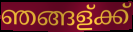
ഞങ്ങള്ക്ക്